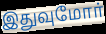
இதுவுமோர்